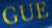
GUE